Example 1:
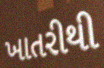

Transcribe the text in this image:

ખાતરીથી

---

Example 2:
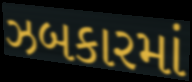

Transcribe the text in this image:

ઝબકારમાં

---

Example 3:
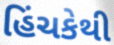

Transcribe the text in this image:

હિંચકેથી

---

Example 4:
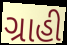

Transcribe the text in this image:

ગ્રાહી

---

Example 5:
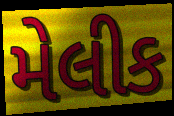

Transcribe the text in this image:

મેલીક